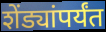
शेंड्यांपर्यंत